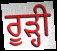
ਰੂੜ੍ਹੀ